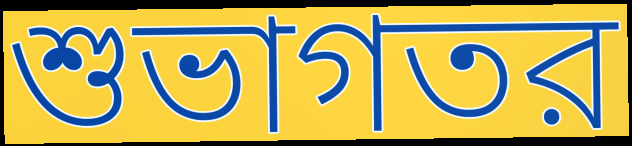
শুভাগতর